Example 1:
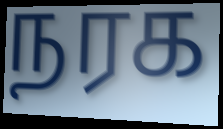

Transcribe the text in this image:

நரக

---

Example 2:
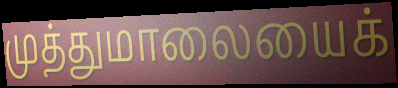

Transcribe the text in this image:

முத்துமாலையைக்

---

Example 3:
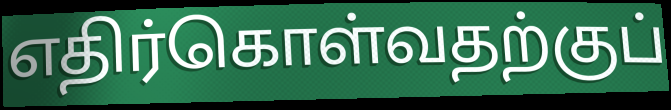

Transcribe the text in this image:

எதிர்கொள்வதற்குப்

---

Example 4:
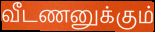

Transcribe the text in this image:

வீடணனுக்கும்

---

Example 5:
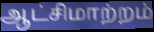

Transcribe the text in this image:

ஆட்சிமாற்றம்